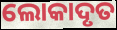
ଲୋକାଦୃତ